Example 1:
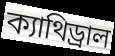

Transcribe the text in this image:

ক্যাথিড্রাল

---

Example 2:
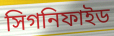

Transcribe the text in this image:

সিগনিফাইড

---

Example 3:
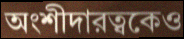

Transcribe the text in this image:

অংশীদারত্বকেও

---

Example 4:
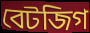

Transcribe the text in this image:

বেটজিগ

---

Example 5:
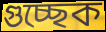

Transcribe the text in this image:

গুচ্ছেক